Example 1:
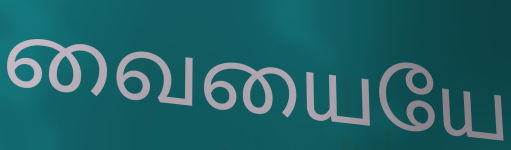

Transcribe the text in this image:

வையையே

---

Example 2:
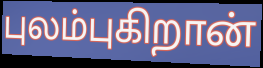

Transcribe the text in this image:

புலம்புகிறான்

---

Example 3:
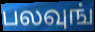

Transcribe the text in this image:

பலவுங்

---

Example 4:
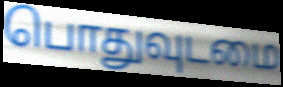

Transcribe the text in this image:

பொதுவுடமை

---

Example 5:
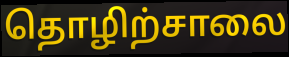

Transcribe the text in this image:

தொழிற்சாலை